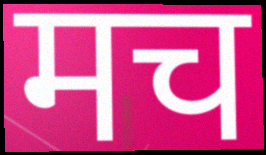
मच